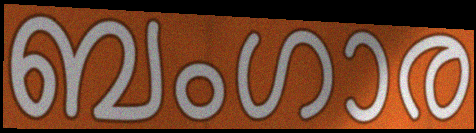
ബംഗാര